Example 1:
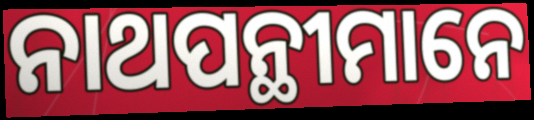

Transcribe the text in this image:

ନାଥପନ୍ଥୀମାନେ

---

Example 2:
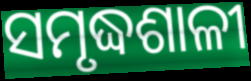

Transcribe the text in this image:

ସମୃଦ୍ଧଶାଳୀ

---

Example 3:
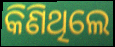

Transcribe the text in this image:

କିଣିଥିଲେ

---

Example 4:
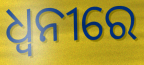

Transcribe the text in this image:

ଧ୍ଵନୀରେ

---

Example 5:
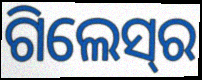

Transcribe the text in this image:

ଗିଲେସ୍‍ର